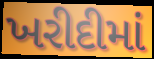
ખરીદીમાં